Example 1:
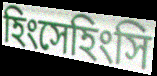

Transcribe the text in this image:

হিংসেহিংসি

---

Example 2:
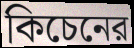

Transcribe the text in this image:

কিচেনের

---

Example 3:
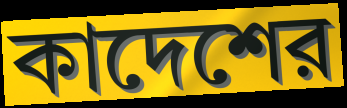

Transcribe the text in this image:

কাদেশের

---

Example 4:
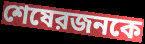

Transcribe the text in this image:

শেষেরজনকে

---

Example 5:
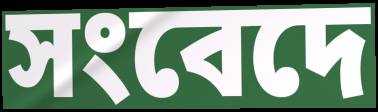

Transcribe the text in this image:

সংবেদে